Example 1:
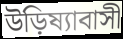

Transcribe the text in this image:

উড়িষ্যাবাসী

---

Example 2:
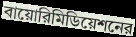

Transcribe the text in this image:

বায়োরিমিডিয়েশনের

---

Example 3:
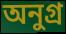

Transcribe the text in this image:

অনুগ্র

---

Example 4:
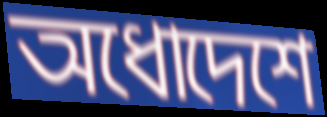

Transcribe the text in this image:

অধোদেশে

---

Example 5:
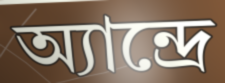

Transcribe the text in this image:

অ্যান্দ্রে